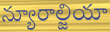
న్యూరాల్జియా